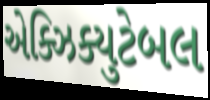
એક્ઝિક્યુટેબલ